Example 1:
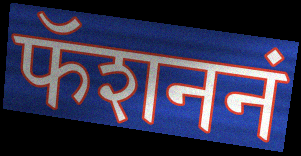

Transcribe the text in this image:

फॅशननं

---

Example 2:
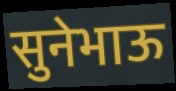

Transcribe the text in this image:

सुनेभाऊ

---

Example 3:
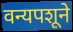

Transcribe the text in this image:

वन्यपशूने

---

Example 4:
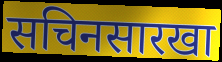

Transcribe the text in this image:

सचिनसारखा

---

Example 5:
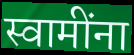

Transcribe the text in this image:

स्वामींना